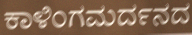
ಕಾಳಿಂಗಮರ್ದನದ